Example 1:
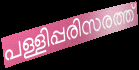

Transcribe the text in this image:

പള്ളിപ്പരിസരത്ത്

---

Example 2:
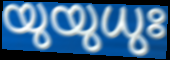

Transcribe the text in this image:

യുയുധുഃ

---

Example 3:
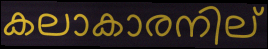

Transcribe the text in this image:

കലാകാരനില്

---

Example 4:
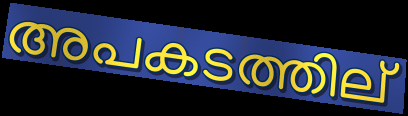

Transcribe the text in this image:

അപകടത്തില്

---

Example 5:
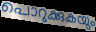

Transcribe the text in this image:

പൊറുക്കുകയും